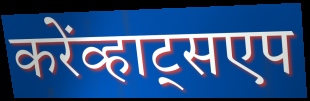
करेंव्हाट्सएप